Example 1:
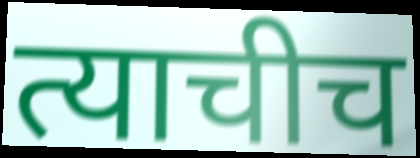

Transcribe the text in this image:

त्याचीच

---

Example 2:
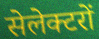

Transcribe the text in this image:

सेलेक्टरों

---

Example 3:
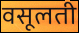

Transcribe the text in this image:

वसूलती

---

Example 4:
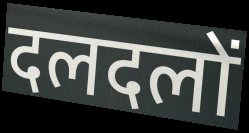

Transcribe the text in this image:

दलदलों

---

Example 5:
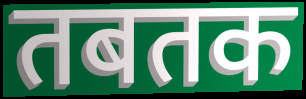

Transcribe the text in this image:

तबतक